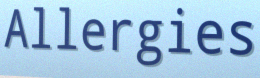
Allergies